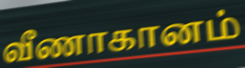
வீணாகானம்